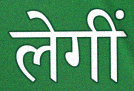
लेगीं